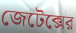
জেটেক্সের